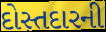
દોસ્તદારની